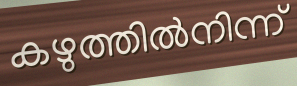
കഴുത്തിൽനിന്ന്